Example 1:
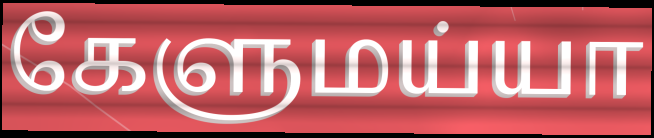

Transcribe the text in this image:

கேளுமய்யா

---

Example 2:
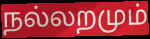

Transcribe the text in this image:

நல்லறமும்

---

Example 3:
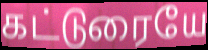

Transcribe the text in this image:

கட்டுரையே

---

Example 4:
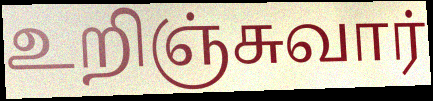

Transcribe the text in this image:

உறிஞ்சுவார்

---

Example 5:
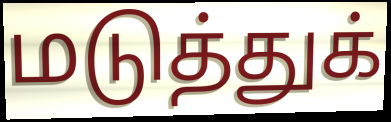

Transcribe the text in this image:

மடுத்துக்